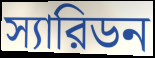
স্যারিডন